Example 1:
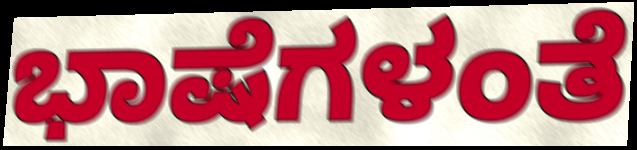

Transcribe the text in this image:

ಭಾಷೆಗಳಂತೆ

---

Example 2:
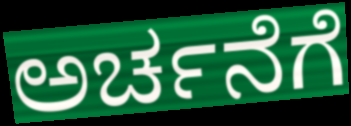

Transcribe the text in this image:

ಅರ್ಚನೆಗೆ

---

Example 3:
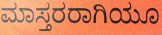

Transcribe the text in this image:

ಮಾಸ್ತರರಾಗಿಯೂ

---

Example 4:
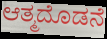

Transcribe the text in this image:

ಆತ್ಮದೊಡನೆ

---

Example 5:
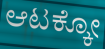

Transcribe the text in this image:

ಆಟಕ್ಕೋ